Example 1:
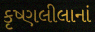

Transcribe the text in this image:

કૃષ્ણલીલાનાં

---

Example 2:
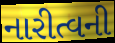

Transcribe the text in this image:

નારીત્વની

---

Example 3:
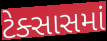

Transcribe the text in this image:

ટેક્સાસમાં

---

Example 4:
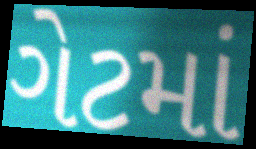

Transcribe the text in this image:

ગેટમાં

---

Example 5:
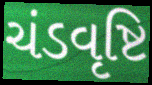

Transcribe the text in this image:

ચંડવૃષ્ટિ